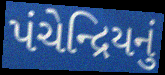
પંચેન્દ્રિયનું